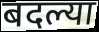
बदल्या